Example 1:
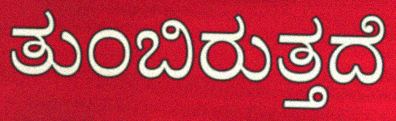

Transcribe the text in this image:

ತುಂಬಿರುತ್ತದೆ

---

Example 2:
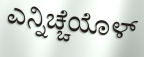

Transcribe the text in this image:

ಎನ್ನಿಚ್ಚೆಯೊಳ್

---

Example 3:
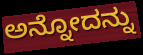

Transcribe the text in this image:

ಅನ್ನೋದನ್ನು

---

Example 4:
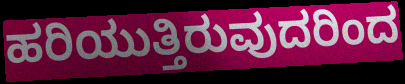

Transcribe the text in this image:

ಹರಿಯುತ್ತಿರುವುದರಿಂದ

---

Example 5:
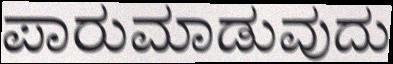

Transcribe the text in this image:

ಪಾರುಮಾಡುವುದು